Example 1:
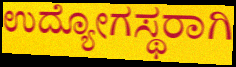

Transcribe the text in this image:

ಉದ್ಯೋಗಸ್ಥರಾಗಿ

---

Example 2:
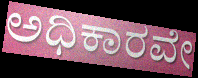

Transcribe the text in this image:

ಅಧಿಕಾರವೇ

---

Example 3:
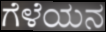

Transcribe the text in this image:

ಗೆಳೆಯನ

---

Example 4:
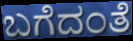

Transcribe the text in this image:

ಬಗೆದಂತೆ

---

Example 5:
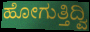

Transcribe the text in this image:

ಹೋಗುತ್ತಿದ್ವಿ